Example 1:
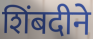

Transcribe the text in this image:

शिंबदीने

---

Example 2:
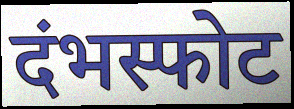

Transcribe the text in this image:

दंभस्फोट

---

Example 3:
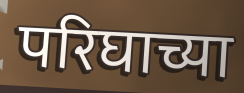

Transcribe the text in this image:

परिघाच्या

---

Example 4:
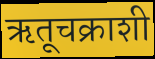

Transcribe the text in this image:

ऋतूचक्राशी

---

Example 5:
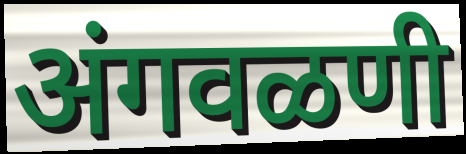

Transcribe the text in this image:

अंगवळणी